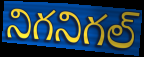
నిగనిగల్